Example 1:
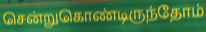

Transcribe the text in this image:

சென்றுகொண்டிருந்தோம்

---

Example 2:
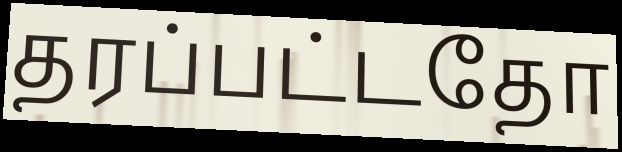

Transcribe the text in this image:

தரப்பட்டதோ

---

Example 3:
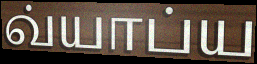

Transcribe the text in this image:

வ்யாப்ய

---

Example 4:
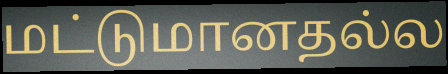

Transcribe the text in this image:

மட்டுமானதல்ல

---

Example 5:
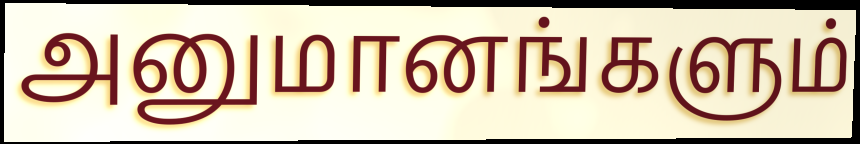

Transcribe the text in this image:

அனுமானங்களும்